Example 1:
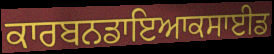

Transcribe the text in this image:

ਕਾਰਬਨਡਾਇਆਕਸਾਈਡ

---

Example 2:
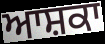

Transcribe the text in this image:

ਆਸ਼ਕਾ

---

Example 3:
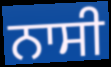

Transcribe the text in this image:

ਨਾਸੀ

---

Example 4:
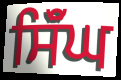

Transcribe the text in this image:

ਸਿੱੰਘ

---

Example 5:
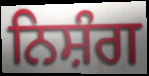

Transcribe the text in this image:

ਨਿਸ਼ੰਗ